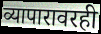
व्यापारावरही